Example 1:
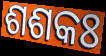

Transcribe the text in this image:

ଶଶକଃ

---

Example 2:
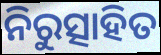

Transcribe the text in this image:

ନିରୁତ୍ସାହିତ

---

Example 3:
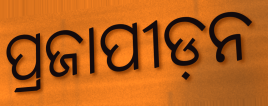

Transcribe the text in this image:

ପ୍ରଜାପୀଡ଼ନ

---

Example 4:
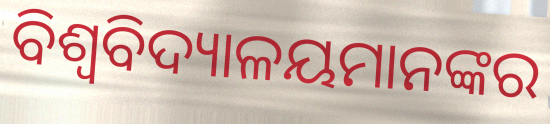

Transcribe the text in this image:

ବିଶ୍ଵବିଦ୍ୟାଳୟମାନଙ୍କର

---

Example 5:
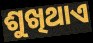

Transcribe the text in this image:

ଶୁଖିଥାଏ